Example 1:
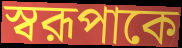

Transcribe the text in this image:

স্বরূপাকে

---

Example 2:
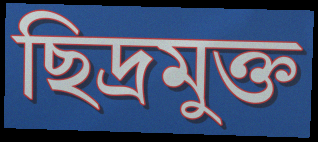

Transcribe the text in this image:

ছিদ্রমুক্ত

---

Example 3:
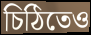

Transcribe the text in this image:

চিঠিতেও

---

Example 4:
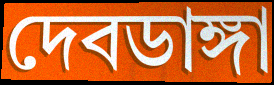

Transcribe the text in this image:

দেবডাঙ্গা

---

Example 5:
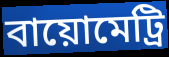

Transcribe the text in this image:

বায়োমেট্রি